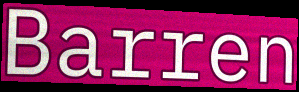
Barren